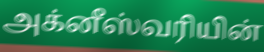
அக்னீஸ்வரியின்